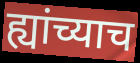
ह्यांच्याच